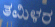
ತಮಿಳರ